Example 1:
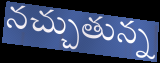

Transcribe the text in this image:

నచ్చుతున్న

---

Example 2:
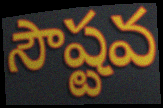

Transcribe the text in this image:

సౌష్టవ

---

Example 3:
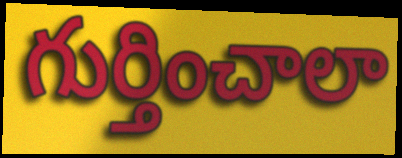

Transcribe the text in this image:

గుర్తించాలా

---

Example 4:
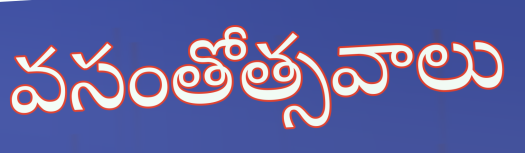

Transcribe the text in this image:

వసంతోత్సవాలు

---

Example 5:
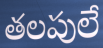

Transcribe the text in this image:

తలపులే